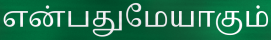
என்பதுமேயாகும்